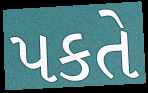
પકતે